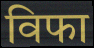
विफा